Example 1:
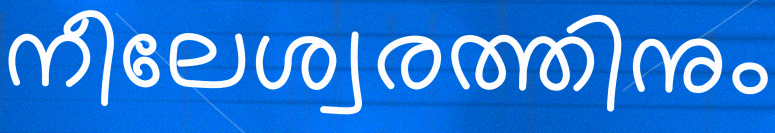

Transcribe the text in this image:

നീലേശ്വരത്തിനും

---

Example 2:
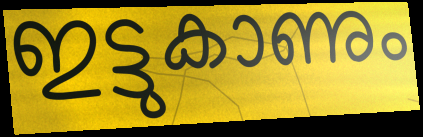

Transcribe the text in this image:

ഇട്ടുകാണും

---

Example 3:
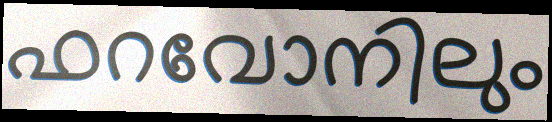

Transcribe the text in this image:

ഫറവോനിലും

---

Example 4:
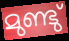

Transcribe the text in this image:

മുണ്ടു്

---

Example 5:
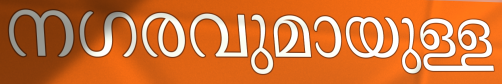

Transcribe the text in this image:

നഗരവുമായുള്ള